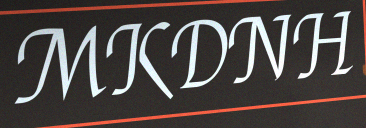
MKDNH